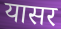
यासर